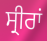
ਸ੍ਰੀਰਾਂ